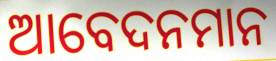
ଆବେଦନମାନ